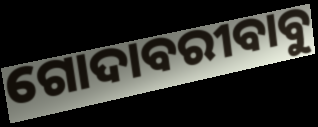
ଗୋଦାବରୀବାବୁ